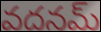
వదనమ్